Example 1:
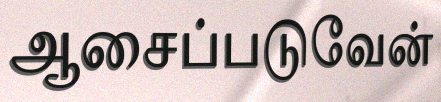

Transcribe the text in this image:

ஆசைப்படுவேன்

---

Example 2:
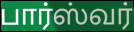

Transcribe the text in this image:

பார்ஸ்வர்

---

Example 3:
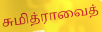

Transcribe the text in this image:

சுமித்ராவைத்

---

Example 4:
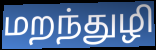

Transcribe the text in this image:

மறந்துழி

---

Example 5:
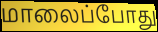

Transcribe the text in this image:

மாலைப்போது